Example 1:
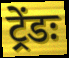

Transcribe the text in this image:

ट्रेंडः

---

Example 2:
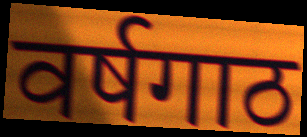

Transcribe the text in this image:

वर्षगाठ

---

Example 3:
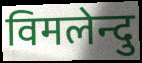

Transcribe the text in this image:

विमलेन्दु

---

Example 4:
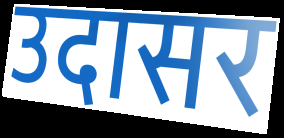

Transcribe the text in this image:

उदासर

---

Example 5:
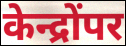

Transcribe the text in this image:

केन्द्रोंपर